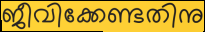
ജീവിക്കേണ്ടതിനു